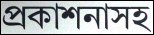
প্রকাশনাসহ